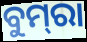
ବୁମ୍‌ରା